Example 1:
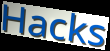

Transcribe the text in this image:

Hacks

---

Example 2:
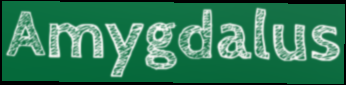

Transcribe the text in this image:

Amygdalus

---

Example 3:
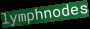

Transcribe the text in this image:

lymphnodes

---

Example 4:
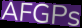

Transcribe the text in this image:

AFGPs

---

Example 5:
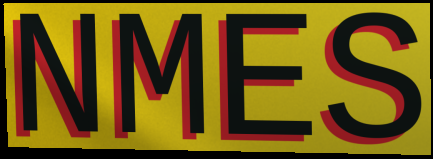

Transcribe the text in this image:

NMES